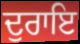
ਦੁਰਾਇ